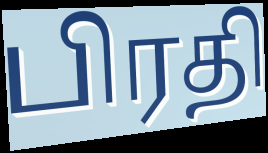
பிரதி